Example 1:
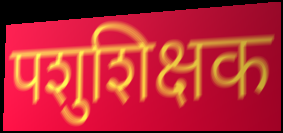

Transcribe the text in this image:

पशुशिक्षक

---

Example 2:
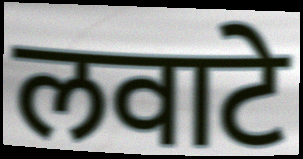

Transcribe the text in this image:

लवाटे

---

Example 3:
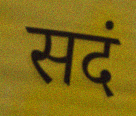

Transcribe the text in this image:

सदं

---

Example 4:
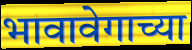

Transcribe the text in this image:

भावावेगाच्या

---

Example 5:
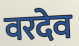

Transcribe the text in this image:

वरदेव